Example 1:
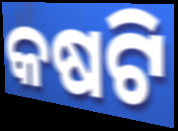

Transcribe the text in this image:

କଷଟି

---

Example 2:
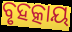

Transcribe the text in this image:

ବୃହତ୍କାୟ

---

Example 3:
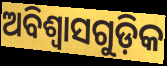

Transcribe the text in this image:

ଅବିଶ୍ଵାସଗୁଡ଼ିକ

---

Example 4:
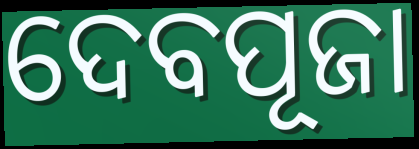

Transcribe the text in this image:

ଦେବପୂଜା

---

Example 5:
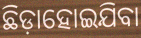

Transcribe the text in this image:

ଛିଡ଼ାହୋଇଯିବା